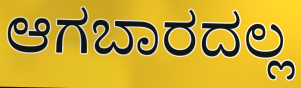
ಆಗಬಾರದಲ್ಲ